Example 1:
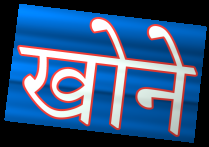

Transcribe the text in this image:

खोने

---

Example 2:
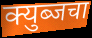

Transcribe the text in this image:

क्युब्जचा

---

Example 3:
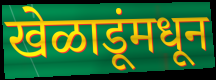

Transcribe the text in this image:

खेळाडूंमधून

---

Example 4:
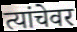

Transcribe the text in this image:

त्यांचेवर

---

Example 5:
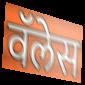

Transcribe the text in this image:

वॅलेस